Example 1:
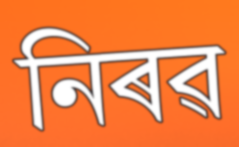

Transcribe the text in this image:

নিৰৱ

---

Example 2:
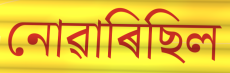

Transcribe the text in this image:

নোৱাৰিছিল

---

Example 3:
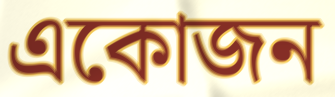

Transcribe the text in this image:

একোজন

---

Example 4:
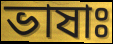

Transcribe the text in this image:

ভাষাঃ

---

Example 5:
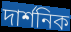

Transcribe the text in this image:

দাৰ্শনিক